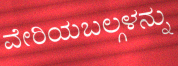
ವೇರಿಯಬಲ್ಗಳನ್ನು